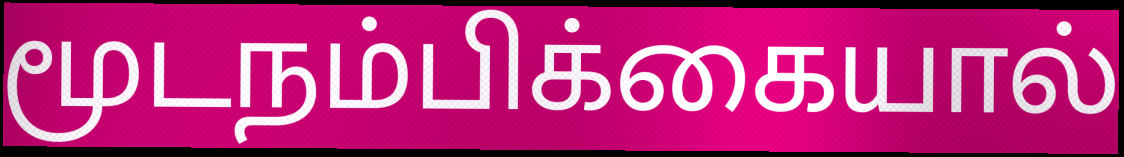
மூடநம்பிக்கையால்